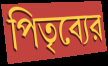
পিতৃব্যের